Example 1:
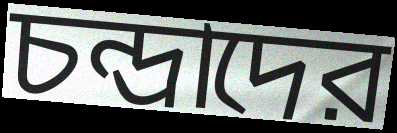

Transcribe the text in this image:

চন্দ্রাদের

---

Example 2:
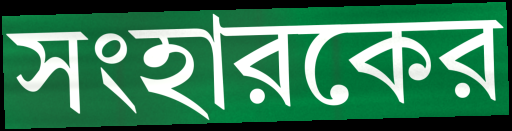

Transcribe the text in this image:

সংহারকের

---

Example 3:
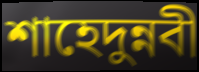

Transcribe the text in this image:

শাহেদুন্নবী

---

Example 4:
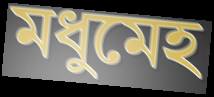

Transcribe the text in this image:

মধুমেহ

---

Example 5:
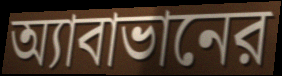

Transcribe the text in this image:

অ্যাবাভানের